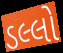
ડલ્લો